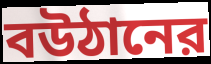
বউঠানের